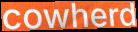
cowherd